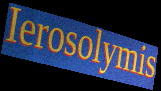
Ierosolymis